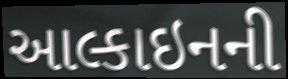
આલ્કાઇનની